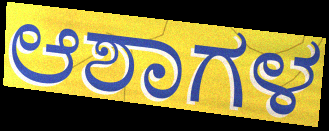
ಆಶಾಗಳ